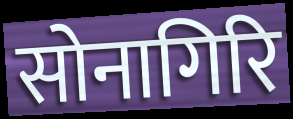
सोनागिरि